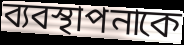
ব্যবস্থাপনাকে